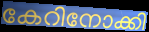
കേറിനോക്കി